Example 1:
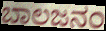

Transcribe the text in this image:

ಬಾಲಜನಂ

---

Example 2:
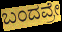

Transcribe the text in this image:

ಬಂದವ್ರೇ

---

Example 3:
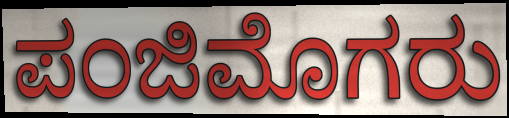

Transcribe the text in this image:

ಪಂಜಿಮೊಗರು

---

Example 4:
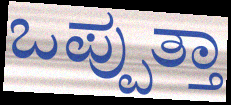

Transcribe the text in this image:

ಒಪ್ಪುತ್ತಾ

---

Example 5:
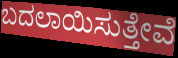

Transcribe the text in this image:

ಬದಲಾಯಿಸುತ್ತೇವೆ